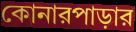
কোনারপাড়ার